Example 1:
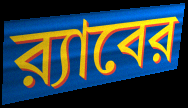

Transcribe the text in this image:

র‍্যাবের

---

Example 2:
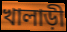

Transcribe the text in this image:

খালাড়ী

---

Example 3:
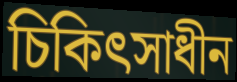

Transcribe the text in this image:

চিকিৎসাধীন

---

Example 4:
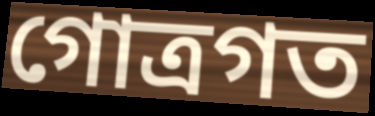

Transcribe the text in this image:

গোত্রগত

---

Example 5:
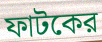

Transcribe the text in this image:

ফাটকের